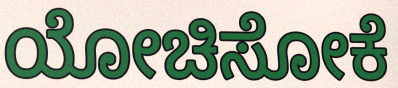
ಯೋಚಿಸೋಕೆ